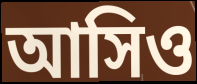
আসিও